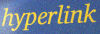
hyperlink